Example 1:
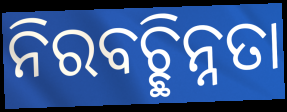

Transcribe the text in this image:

ନିରବଚ୍ଛିନ୍ନତା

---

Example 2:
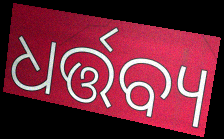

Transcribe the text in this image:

ଧର୍ତ୍ତବ୍ୟ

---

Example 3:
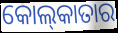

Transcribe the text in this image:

କୋଲ୍‍କାତାର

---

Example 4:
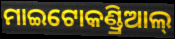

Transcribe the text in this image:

ମାଇଟୋକଣ୍ଡ୍ରିଆଲ୍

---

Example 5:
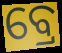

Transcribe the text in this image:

ବ୍ରେ